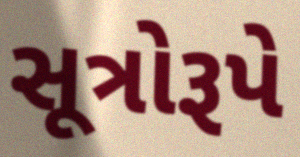
સૂત્રોરૂપે